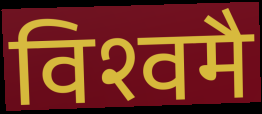
विश्वमै